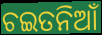
ଚଇତନିଆଁ